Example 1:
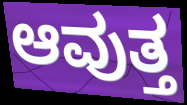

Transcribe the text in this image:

ಆವುತ್ತ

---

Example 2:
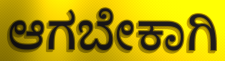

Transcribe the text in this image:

ಆಗಬೇಕಾಗಿ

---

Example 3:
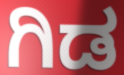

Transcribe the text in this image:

ಗಿಡ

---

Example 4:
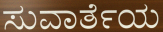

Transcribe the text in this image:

ಸುವಾರ್ತೆಯ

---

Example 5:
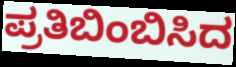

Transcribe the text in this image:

ಪ್ರತಿಬಿಂಬಿಸಿದ